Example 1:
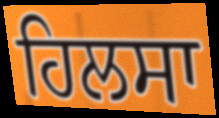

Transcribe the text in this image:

ਹਿਲਸਾ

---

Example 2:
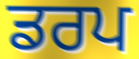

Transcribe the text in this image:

ਡਰਪ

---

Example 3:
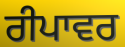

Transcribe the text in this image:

ਰੀਪਾਵਰ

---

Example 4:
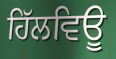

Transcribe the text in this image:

ਹਿੱਲਵਿਊ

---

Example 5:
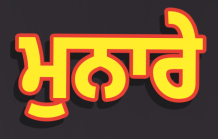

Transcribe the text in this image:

ਮੁਨਾਰੇ